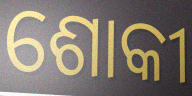
ଶୋକୀ